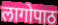
लागोपाठ